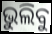
ଭୁଲିବୁ